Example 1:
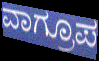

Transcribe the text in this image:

ವಾಗ್ರೂಪ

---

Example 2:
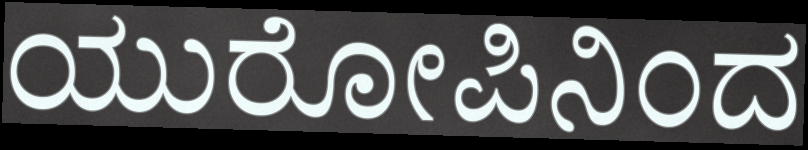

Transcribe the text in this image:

ಯುರೋಪಿನಿಂದ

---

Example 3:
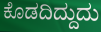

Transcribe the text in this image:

ಕೊಡದಿದ್ದುದು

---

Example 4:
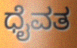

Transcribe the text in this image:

ಧೈವತ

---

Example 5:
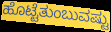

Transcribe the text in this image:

ಹೊಟ್ಟೆತುಂಬುವಷ್ಟು